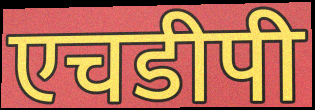
एचडीपी